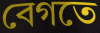
বেগতে